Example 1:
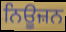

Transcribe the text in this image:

ਨਿਊਜ਼ਨ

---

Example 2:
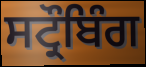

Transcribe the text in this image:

ਸਟ੍ਰੌਬਿੰਗ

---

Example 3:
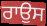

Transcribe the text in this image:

ਰਾਉਸ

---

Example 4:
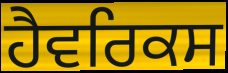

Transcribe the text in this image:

ਹੈਵਰਿਕਸ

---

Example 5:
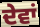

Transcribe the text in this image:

ਦੇਵਾਂ